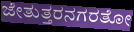
ಜೇತುತ್ತರನಗರತೋ